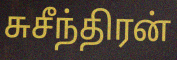
சுசீந்திரன்